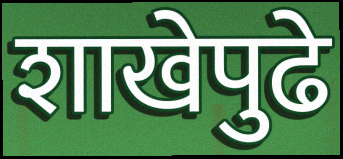
शाखेपुढे